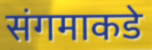
संगमाकडे